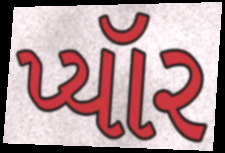
પ્યૉર